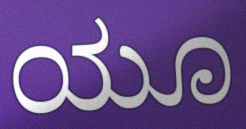
ಯೂ